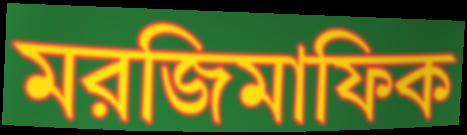
মরজিমাফিক